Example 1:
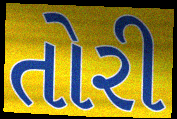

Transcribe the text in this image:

તોરી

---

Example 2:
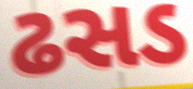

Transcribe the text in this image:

ઢસડ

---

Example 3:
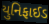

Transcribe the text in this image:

યુનિફાઈડ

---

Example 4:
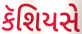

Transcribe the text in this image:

કૅશિયસે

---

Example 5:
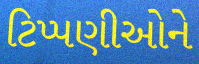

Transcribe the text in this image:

ટિપ્પણીઓને